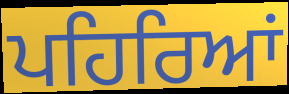
ਪਹਿਰਿਆਂ